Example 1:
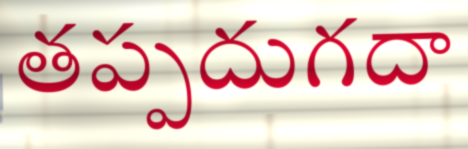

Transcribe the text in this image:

తప్పదుగదా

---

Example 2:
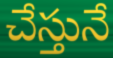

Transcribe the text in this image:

చేస్తునే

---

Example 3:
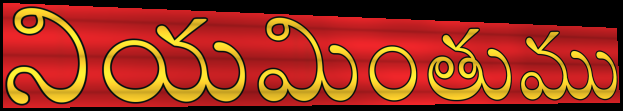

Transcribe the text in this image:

నియమింతుము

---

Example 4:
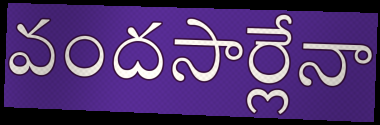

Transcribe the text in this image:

వందసార్లేనా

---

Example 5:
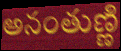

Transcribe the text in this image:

అనంతుణ్ణి